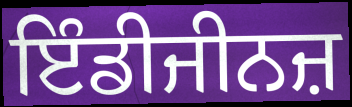
ਇੰਡੀਜੀਨਜ਼